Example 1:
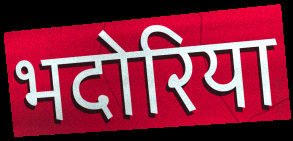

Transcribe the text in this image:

भदोरिया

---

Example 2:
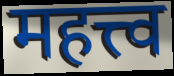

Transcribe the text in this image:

महत्त्व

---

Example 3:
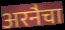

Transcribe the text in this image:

अरनैचा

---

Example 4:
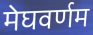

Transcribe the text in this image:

मेघवर्णम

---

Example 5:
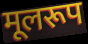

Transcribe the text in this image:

मूलरूप